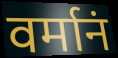
वर्मानं